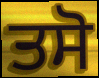
ਤਸੋ